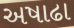
અષાઢા